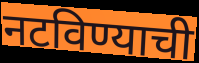
नटविण्याची